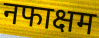
नफाक्षम